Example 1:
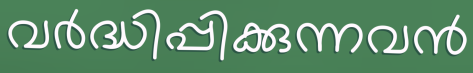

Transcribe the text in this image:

വർദ്ധിപ്പിക്കുന്നവൻ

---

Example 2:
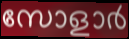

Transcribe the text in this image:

സോളാർ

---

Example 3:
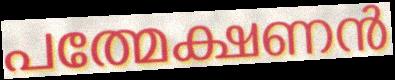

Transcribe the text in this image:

പത്മേക്ഷണൻ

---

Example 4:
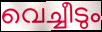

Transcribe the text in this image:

വെച്ചീടും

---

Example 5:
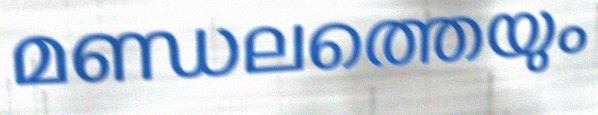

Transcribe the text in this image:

മണ്ഡലത്തെയും